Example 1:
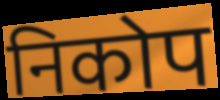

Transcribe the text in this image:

निकोप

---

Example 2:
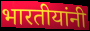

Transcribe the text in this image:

भारतीयांनी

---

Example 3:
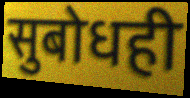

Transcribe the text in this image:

सुबोधही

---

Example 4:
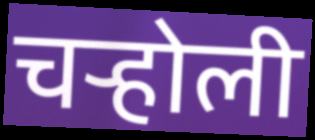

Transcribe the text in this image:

चऱ्होली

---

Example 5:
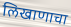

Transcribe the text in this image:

लिखाणाचा